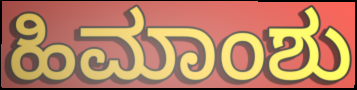
ಹಿಮಾಂಶು